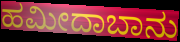
ಹಮೀದಾಬಾನು